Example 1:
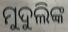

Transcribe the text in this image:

ମୁଦୁଲିଙ୍କ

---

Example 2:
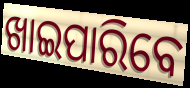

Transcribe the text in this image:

ଖାଇପାରିବେ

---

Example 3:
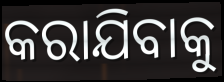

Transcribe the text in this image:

କରାଯିବାକୁ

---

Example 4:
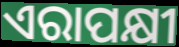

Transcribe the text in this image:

ଏରାପକ୍ଷୀ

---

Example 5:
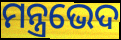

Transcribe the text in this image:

ମନ୍ତ୍ରଭେଦ